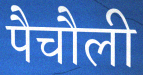
पैचौली